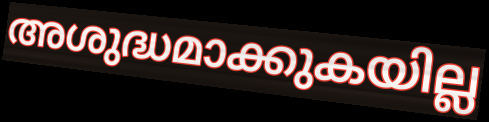
അശുദ്ധമാക്കുകയില്ല